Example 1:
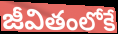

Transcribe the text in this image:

జీవితంలోకే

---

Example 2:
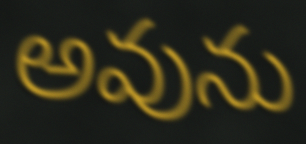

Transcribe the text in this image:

అవును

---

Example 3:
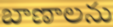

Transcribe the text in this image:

బాణాలను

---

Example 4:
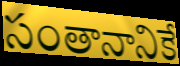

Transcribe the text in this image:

సంతానానికే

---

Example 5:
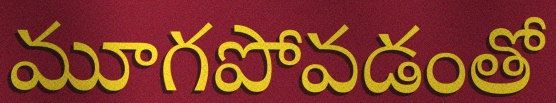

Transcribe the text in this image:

మూగపోవడంతో